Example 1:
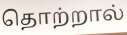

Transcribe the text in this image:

தொற்றால்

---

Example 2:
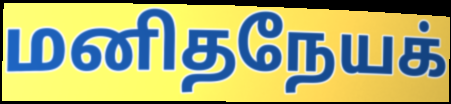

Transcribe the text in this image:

மனிதநேயக்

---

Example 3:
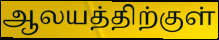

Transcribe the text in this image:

ஆலயத்திற்குள்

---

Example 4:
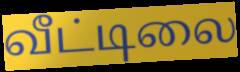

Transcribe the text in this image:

வீட்டிலை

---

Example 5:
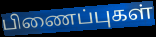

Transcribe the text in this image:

பிணைப்புகள்